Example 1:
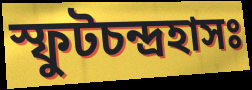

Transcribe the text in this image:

স্ফুটচন্দ্রহাসঃ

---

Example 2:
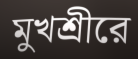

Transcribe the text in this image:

মুখশ্রীরে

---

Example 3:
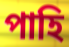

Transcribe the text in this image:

পাহি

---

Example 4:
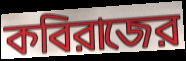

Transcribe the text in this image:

কবিরাজের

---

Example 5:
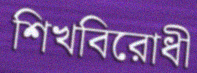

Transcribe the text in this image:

শিখবিরোধী